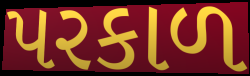
પરકાળ